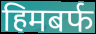
हिमबर्फ